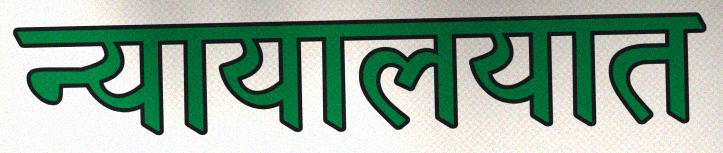
न्यायालयात